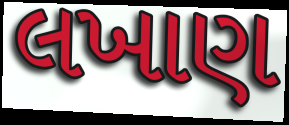
લખાણ